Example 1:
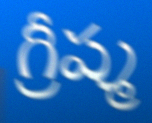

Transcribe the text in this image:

గ్రీష్మ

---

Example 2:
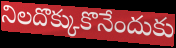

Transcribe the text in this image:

నిలదొక్కుకొనేందుకు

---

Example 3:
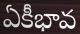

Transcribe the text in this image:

ఏకీభావ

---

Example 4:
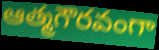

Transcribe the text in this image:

ఆత్మగౌరవంగా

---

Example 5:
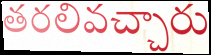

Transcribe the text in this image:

తరలివచ్చారు